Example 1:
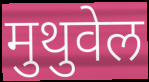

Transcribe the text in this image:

मुथुवेल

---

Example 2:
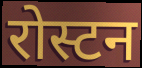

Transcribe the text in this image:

रोस्टन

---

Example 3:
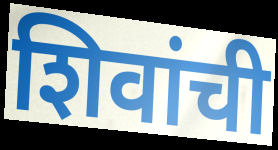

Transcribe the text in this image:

शिवांची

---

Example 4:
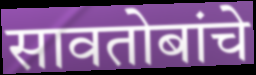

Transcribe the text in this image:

सावतोबांचे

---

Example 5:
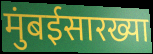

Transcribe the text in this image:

मुंबईसारख्या